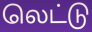
லெட்டு